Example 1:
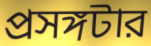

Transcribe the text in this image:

প্রসঙ্গটার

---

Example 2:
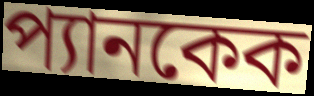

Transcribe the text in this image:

প্যানকেক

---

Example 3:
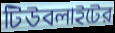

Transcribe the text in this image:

টিউবলাইটের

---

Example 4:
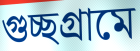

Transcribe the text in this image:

গুচ্ছগ্রামে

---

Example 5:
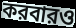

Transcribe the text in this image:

করবারও